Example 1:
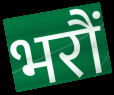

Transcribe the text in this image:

भरौं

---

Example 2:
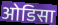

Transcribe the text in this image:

ओडिसा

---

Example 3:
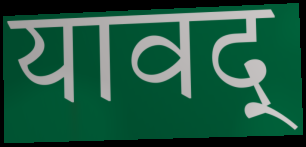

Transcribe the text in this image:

यावद्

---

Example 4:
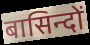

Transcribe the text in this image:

बासिन्दों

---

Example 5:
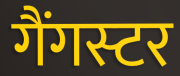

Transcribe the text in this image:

गैंगस्‍टर